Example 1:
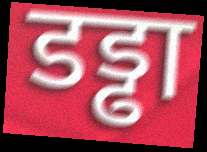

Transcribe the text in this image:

डड्ढा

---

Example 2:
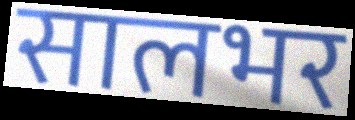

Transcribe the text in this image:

सालभर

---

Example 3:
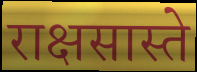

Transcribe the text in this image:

राक्षसास्ते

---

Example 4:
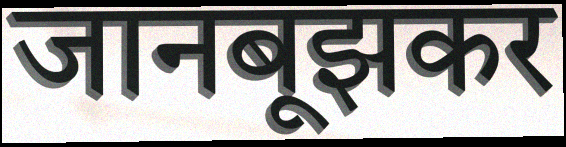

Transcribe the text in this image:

जानबूझकर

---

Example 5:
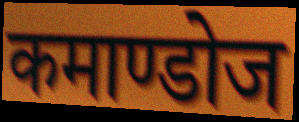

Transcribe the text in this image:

कमाण्डोज